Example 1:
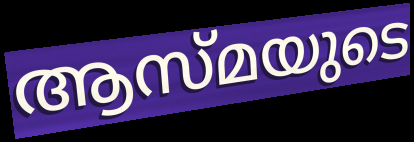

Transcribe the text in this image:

ആസ്മയുടെ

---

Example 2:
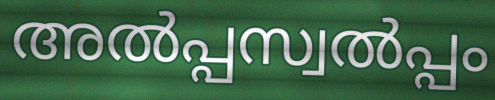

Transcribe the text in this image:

അൽപ്പസ്വൽപ്പം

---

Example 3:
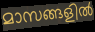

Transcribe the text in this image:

മാസങ്ങളിൽ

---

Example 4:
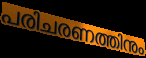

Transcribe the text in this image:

പരിചരണത്തിനും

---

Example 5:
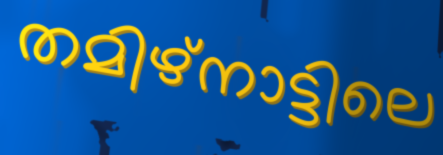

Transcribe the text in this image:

തമിഴ്നാട്ടിലെ